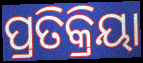
ପ୍ରତିକ୍ରିୟା